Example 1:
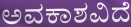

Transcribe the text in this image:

ಅವಕಾಶವಿದೆ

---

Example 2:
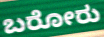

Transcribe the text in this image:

ಬರೋರು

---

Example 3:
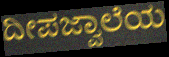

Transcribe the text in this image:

ದೀಪಜ್ವಾಲೆಯ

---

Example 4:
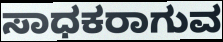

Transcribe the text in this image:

ಸಾಧಕರಾಗುವ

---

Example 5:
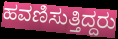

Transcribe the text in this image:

ಹವಣಿಸುತ್ತಿದ್ದರು